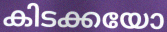
കിടക്കയോ